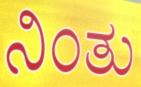
ನಿಂತು